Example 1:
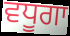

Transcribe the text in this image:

ਵਧੂਗਾ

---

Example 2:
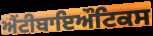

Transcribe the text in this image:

ਐਂਟੀਬਾਇਔਟਿਕਸ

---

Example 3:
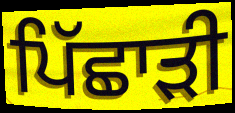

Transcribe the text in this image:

ਪਿੱਛਾੜੀ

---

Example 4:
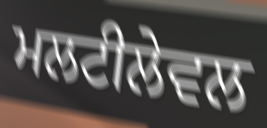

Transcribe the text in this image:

ਮਲਟੀਲੇਵਲ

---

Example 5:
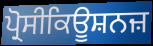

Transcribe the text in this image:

ਪ੍ਰੋਸੀਕਿਊਸ਼ਨਜ਼